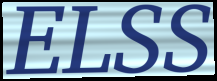
ELSS